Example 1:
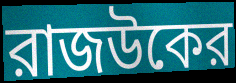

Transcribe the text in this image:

রাজউকের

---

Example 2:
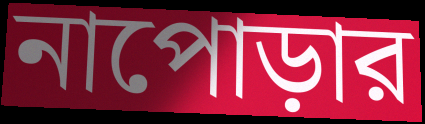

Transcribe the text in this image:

নাপোড়ার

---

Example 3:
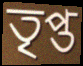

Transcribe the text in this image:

তৃপ্ত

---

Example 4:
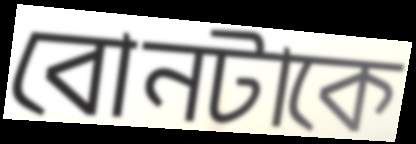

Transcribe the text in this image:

বোনটাকে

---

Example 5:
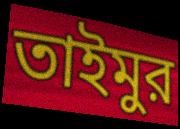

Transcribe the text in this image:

তাইমুর